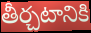
తీర్చటానికి